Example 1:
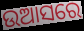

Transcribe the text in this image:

ଉଆସରେ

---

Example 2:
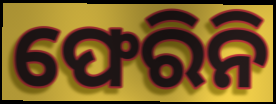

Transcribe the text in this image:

ଫେରିନି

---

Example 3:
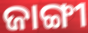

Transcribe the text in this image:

ଜାଙ୍ଗୀ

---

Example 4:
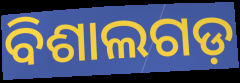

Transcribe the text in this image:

ବିଶାଲଗଡ଼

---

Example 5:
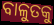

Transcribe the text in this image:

ବାଳୁତକୁ